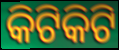
କିଟିକିଟି